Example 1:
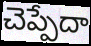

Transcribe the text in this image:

చెప్పేదా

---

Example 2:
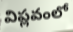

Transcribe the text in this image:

విప్లవంలో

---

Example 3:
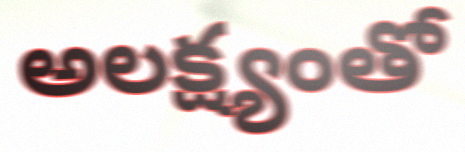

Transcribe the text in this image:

అలక్ష్యంతో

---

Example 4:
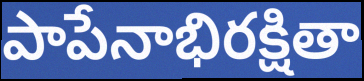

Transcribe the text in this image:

పాపేనాభిరక్షితా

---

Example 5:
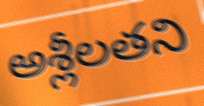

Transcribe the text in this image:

అశ్లీలతని